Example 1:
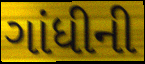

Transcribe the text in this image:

ગાંધીની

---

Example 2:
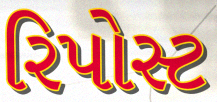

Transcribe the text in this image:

રિપોસ્ટ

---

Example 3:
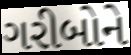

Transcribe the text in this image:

ગરીબોને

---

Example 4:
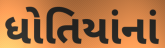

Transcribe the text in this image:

ધોતિયાંનાં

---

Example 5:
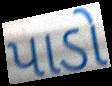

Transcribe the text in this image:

પાડો